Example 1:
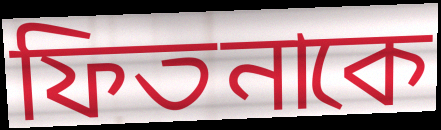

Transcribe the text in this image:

ফিতনাকে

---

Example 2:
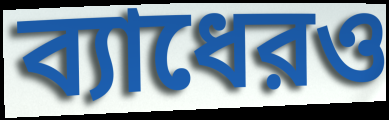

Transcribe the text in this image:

ব্যাধেরও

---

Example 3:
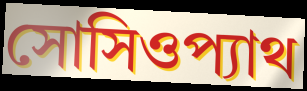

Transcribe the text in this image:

সোসিওপ্যাথ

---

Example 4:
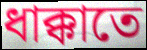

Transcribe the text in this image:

ধাক্কাতে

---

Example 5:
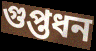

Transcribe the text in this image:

গুপ্তধন